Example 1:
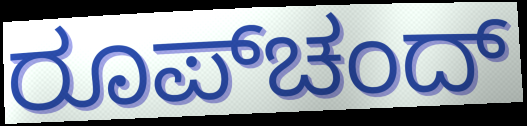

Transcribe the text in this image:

ರೂಪ್‌ಚಂದ್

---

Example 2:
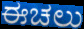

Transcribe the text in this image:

ಈಚಲು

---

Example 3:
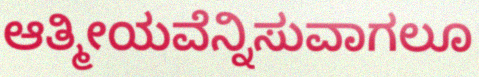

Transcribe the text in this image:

ಆತ್ಮೀಯವೆನ್ನಿಸುವಾಗಲೂ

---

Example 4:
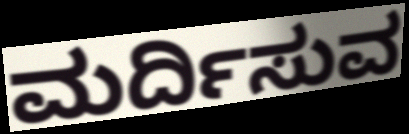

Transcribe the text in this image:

ಮರ್ದಿಸುವ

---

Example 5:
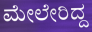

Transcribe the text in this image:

ಮೇಲೇರಿದ್ದ